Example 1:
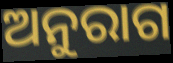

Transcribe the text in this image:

ଅନୁରାଗ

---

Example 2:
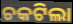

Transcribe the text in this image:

ଚକଟିଲା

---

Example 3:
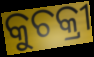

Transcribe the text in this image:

କୁଚକ୍ରୀ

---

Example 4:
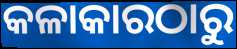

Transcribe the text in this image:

କଳାକାରଠାରୁ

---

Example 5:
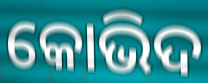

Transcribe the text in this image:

କୋଭିଦ